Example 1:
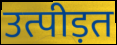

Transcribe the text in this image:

उत्पीड़त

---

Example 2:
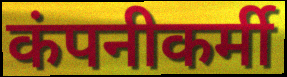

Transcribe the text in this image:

कंपनीकर्मी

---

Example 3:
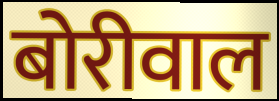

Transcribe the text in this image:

बोरीवाल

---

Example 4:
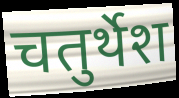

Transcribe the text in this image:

चतुर्थेश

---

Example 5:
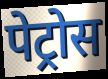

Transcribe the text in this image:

पेट्रोस